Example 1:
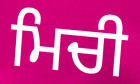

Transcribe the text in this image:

ਮਿਚੀ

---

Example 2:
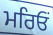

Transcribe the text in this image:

ਮਰਿਓਂ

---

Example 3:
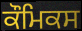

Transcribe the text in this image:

ਕੌਮਿਕਸ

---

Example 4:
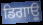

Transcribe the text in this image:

ਡਿਗਾਊ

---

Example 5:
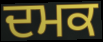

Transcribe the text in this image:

ਦਮਕ